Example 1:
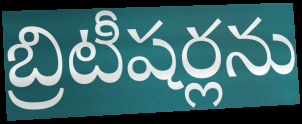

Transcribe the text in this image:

బ్రిటీషర్లను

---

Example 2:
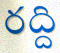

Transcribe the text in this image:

రద్ది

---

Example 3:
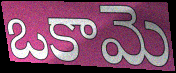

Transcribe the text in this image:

ఒకామె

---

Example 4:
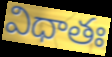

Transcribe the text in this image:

విధాతః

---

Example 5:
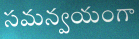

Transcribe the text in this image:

సమన్వయంగా